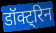
डॉक्ट्रिन